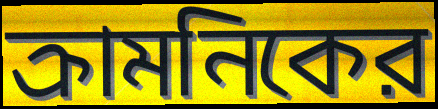
ক্রামনিকের